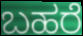
ಬಹರೆ